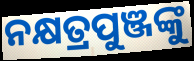
ନକ୍ଷତ୍ରପୁଞ୍ଜଙ୍କୁ